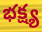
భక్ష్య